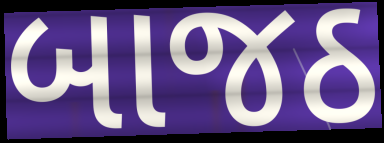
બાજઠ